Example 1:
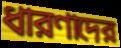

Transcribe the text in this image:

ধারণাদের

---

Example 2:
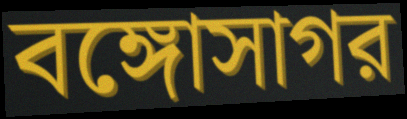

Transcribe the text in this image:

বঙ্গোসাগর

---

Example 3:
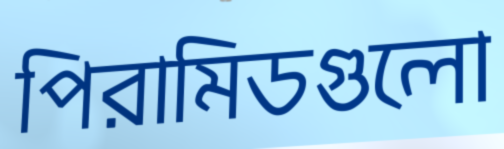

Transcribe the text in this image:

পিরামিডগুলো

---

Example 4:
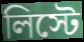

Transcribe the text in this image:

লিস্টে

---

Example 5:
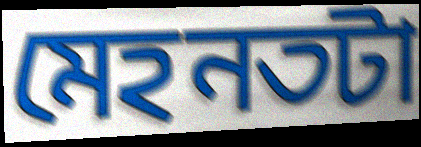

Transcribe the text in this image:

মেহনতটা